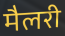
मैलरी